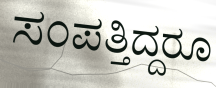
ಸಂಪತ್ತಿದ್ದರೂ